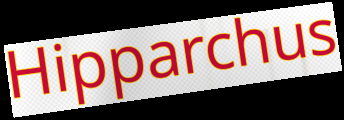
Hipparchus